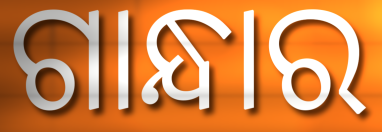
ଗାନ୍ଧାର